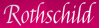
Rothschild